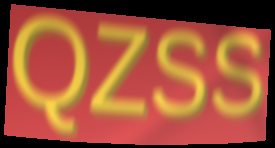
QZSS